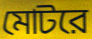
মোটরে